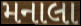
મનાલા